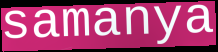
samanya